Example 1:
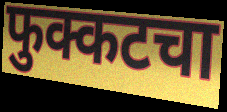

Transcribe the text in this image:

फुक्कटचा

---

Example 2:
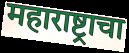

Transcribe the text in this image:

महाराष्ट्राचा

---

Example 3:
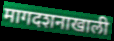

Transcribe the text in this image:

मागदशनाखाली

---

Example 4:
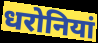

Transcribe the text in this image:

धरोनियां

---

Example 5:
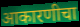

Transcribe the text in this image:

आकारणीचा